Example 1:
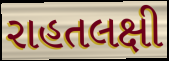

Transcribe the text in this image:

રાહતલક્ષી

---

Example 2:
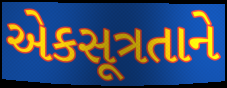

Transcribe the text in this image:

એકસૂત્રતાને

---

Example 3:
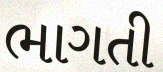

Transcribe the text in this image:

ભાગતી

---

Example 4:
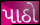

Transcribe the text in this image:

પાઠો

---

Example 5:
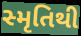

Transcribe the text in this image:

સ્મૃતિથી